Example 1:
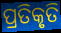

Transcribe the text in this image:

ପ୍ରତିକୃତି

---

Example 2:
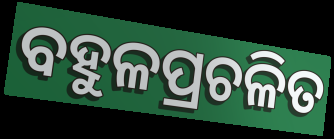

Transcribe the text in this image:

ବହୁଳପ୍ରଚଳିତ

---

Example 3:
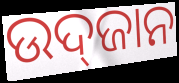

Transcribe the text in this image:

ଉଦ୍‌ଜାନ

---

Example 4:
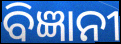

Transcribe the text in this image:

ବିଜ୍ଞାନୀ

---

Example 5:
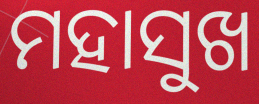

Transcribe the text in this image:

ମହାସୁଖ